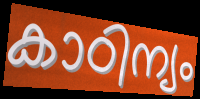
കാഠിന്യം